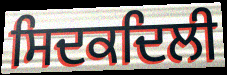
ਸਿਦਕਦਿਲੀ